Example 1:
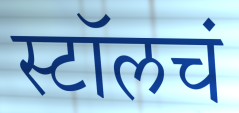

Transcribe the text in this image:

स्टॉलचं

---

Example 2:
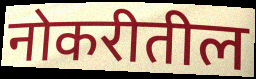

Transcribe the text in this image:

नोकरीतील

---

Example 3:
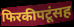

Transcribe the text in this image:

फिरकीपटूंसह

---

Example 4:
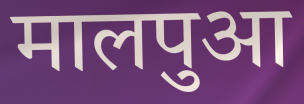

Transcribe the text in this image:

मालपुआ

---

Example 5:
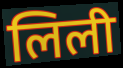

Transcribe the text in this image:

लिली